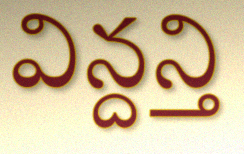
విన్దన్తి